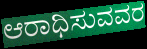
ಆರಾಧಿಸುವವರ